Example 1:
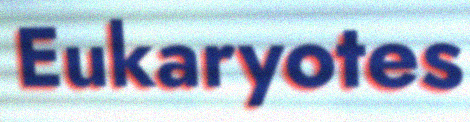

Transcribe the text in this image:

Eukaryotes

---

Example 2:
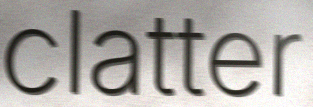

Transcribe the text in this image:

clatter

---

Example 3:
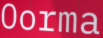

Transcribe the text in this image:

Oorma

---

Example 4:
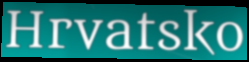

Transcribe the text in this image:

Hrvatsko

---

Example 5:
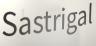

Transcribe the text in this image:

Sastrigal